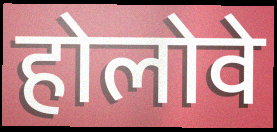
होलोवे